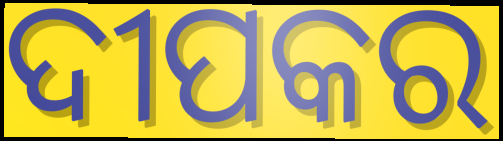
ଦୀପକର